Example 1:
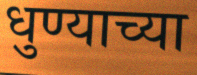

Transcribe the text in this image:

धुण्याच्या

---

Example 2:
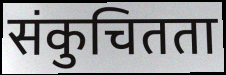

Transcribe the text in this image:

संकुचितता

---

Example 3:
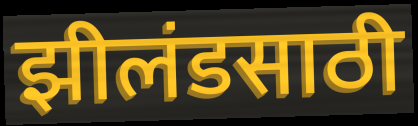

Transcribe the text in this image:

झीलंडसाठी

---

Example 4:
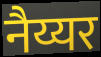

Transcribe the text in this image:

नैय्यर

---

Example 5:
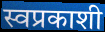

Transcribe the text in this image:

स्वप्रकाशी